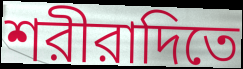
শরীরাদিতে